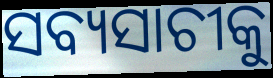
ସବ୍ୟସାଚୀକୁ